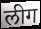
लीग